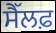
ਸੈੱਲਫ਼